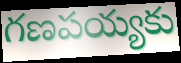
గణపయ్యకు